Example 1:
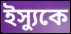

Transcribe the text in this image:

ইস্যুকে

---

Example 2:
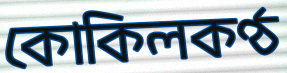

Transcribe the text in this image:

কোকিলকণ্ঠ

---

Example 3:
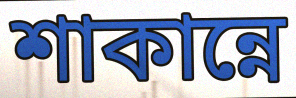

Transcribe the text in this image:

শাকান্নে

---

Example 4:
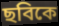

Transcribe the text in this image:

ছবিকে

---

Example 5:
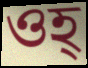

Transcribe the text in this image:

ওহ্